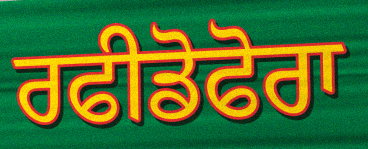
ਰਫੀਡੋਫੋਰਾ